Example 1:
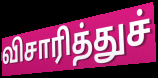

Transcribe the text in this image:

விசாரித்துச்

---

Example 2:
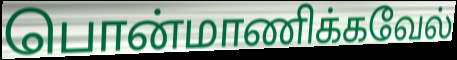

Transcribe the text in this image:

பொன்மாணிக்கவேல்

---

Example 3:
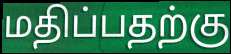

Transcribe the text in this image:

மதிப்பதற்கு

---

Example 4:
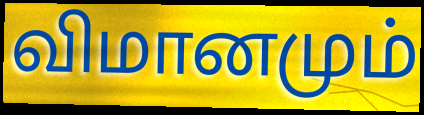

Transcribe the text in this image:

விமானமும்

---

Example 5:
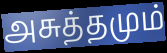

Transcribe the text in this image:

அசுத்தமும்